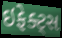
ઇફેક્ટ્સ